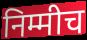
निम्मीच